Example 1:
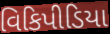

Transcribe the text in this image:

વિકિપીડિયા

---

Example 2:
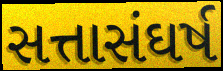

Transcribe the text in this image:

સત્તાસંઘર્ષ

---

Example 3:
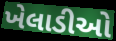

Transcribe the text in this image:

ખેલાડીઓ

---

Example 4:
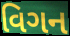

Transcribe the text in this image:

વિગન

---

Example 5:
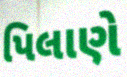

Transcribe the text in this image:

પિલાણે